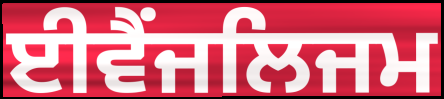
ਈਵੈਂਜਲਿਜਮ